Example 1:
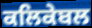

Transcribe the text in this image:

ਕਲਿਕੇਬਲ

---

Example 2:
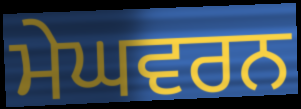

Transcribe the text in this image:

ਮੇਘਵਰਨ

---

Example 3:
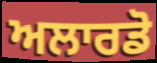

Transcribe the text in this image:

ਅਲਾਰਡੋ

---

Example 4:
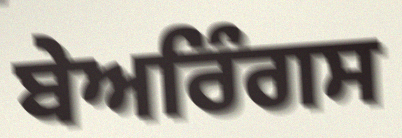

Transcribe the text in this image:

ਬੇਅਰਿੰਗਸ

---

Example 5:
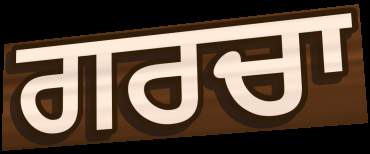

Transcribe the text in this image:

ਗਰਚਾ